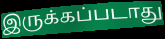
இருக்கப்படாது